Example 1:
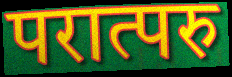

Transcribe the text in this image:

परात्परु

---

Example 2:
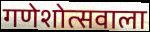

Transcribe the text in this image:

गणेशोत्सवाला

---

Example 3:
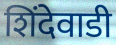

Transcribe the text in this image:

शिंदेवाडी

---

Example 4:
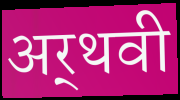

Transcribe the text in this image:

अर्थवी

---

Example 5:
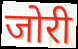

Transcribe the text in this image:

जोरी